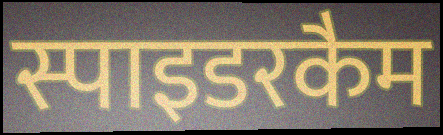
स्पाइडरकैम